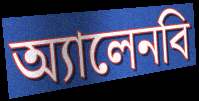
অ্যালেনবি